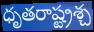
ధృతరాష్ట్రశ్చ